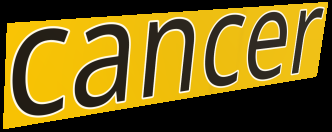
cancer